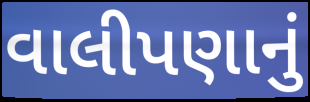
વાલીપણાનું